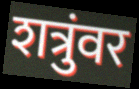
शत्रुंवर